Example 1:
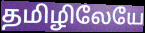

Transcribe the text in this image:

தமிழிலேயே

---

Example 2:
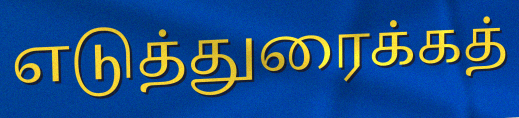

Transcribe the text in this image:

எடுத்துரைக்கத்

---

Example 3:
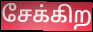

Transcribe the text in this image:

சேக்கிற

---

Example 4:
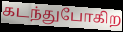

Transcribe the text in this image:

கடந்துபோகிற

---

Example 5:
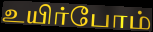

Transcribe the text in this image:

உயிர்போம்